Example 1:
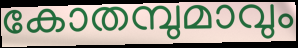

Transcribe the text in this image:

കോതമ്പുമാവും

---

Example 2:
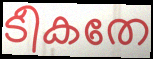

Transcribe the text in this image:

ടീകതേ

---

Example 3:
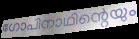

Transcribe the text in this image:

ഗോപിനാഥിന്റെയും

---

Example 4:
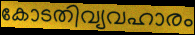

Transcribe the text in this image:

കോടതിവ്യവഹാരം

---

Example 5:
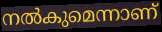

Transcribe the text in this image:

നൽകുമെന്നാണ്